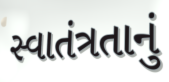
સ્વાતંત્રતાનું